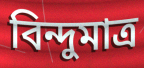
বিন্দুমাত্র